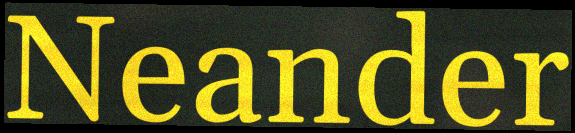
Neander